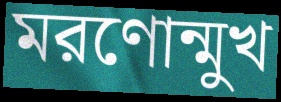
মরণোন্মুখ